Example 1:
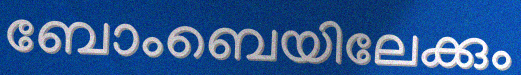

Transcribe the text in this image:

ബോംബെയിലേക്കും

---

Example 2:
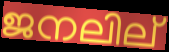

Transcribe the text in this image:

ജനലില്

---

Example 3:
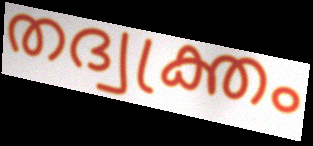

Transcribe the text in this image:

തദ്വക്ത്രം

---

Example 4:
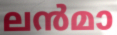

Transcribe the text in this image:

ലൻമാ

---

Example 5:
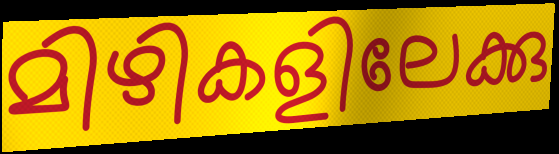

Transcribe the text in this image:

മിഴികളിലേക്കു